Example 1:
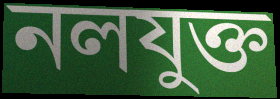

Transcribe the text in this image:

নলযুক্ত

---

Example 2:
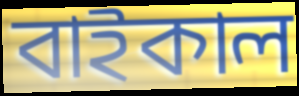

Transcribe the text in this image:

বাইকাল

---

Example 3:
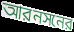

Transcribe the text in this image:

আরনসনের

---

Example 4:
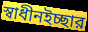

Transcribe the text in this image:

স্বাধীনইচ্ছার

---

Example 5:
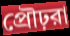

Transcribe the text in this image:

প্রৌঢ়রা